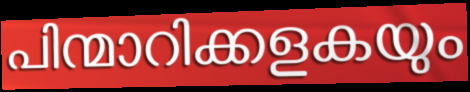
പിന്മാറിക്കളകയും